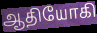
ஆதியோகி